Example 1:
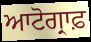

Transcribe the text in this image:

ਆਟੋਗ੍ਰਾਫ਼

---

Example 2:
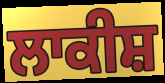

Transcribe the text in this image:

ਲਾਕੀਸ਼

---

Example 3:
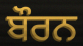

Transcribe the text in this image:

ਬੌਰਨ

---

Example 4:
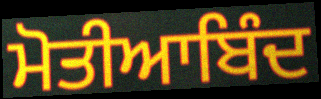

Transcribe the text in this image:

ਮੋਤੀਆਬਿੰਦ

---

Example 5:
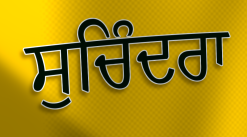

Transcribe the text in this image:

ਸੁਚਿੰਦਰਾ